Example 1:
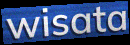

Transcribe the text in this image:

wisata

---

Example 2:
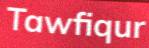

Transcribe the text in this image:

Tawfiqur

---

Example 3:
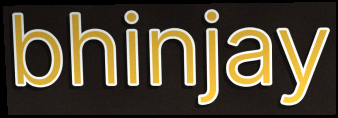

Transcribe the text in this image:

bhinjay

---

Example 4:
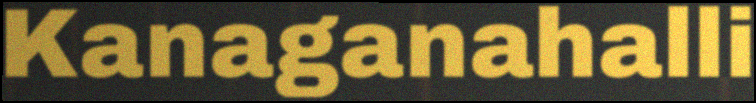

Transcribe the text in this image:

Kanaganahalli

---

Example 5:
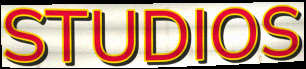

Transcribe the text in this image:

STUDIOS